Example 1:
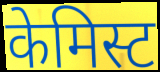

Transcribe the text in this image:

केमिस्ट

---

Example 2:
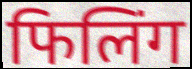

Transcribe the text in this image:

फिलिंग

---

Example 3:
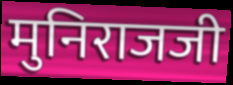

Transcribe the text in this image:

मुनिराजजी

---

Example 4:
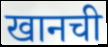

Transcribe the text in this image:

खानची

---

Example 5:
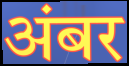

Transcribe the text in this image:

अंबर